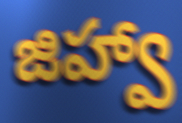
జిహ్వా